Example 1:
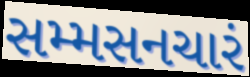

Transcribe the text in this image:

સમ્મસનચારં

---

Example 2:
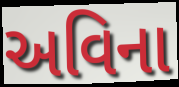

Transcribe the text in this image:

અવિના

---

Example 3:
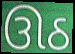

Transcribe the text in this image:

ઊઠ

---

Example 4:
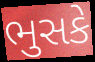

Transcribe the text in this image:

ભુસકે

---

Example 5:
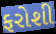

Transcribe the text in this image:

ફરોશી